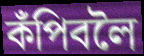
কঁপিবলৈ